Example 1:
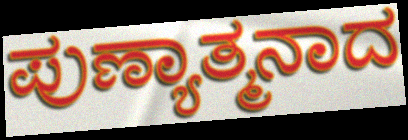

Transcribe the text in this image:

ಪುಣ್ಯಾತ್ಮನಾದ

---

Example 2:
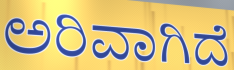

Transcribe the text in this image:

ಅರಿವಾಗಿದೆ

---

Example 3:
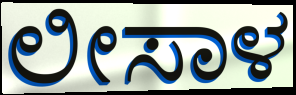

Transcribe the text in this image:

ಲೀಸಾಳ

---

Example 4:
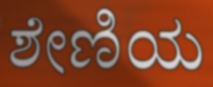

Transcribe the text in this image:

ಶೇಣಿಯ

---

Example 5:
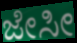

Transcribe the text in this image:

ಜೇಸೀ